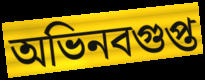
অভিনবগুপ্ত